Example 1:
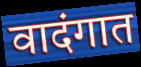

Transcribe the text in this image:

वादंगात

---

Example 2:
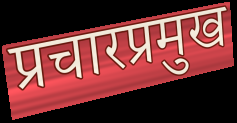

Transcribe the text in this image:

प्रचारप्रमुख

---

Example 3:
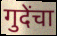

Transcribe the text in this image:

गुदेंचा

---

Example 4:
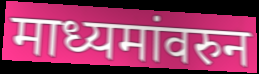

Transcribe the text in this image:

माध्यमांवरुन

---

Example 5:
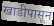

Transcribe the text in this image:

खाडीपासून